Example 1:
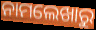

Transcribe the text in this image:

ନାମଲେଖାରୁ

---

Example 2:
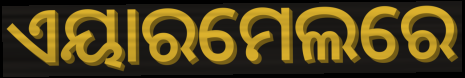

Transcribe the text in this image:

ଏୟାରମେଲରେ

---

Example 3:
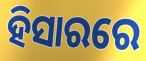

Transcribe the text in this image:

ହିସାରରେ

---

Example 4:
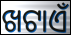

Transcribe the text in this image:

ଖଟାଏଁ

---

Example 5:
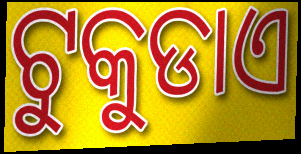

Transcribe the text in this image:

ଟୁକୁଡାଏ